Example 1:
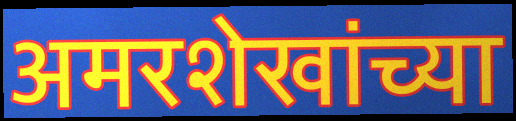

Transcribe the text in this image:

अमरशेखांच्या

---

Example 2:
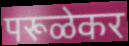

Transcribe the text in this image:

परूळेकर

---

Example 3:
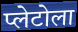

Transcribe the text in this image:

प्लेटोला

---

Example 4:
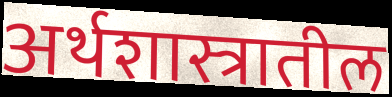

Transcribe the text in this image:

अर्थशास्त्रातील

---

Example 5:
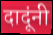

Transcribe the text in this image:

दादूंनी